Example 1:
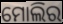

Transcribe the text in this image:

ମୋଲିର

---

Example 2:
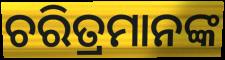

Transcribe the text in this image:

ଚରିତ୍ରମାନଙ୍କ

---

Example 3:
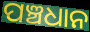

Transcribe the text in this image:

ପଞ୍ଚଧାନ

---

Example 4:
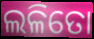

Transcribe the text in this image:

ଲଳିତୋ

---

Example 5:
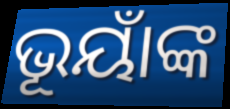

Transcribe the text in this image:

ଭୂୟାଁଙ୍କ